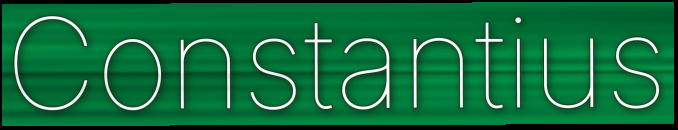
Constantius